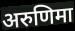
अरुणिमा